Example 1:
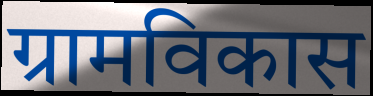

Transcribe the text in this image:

ग्रामविकास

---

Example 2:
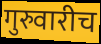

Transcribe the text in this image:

गुरुवारीच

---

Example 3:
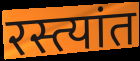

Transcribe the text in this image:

रस्त्यांत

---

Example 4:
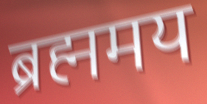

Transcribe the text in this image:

ब्रह्ममय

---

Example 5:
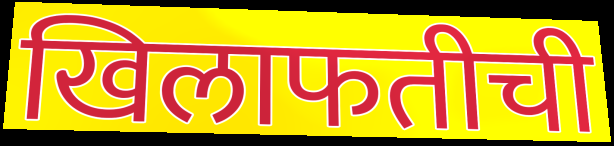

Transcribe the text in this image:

खिलाफतीची